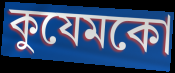
কুযেমকো